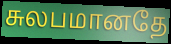
சுலபமானதே